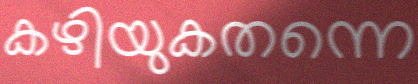
കഴിയുകതന്നെ